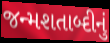
જન્મશતાબ્દીનું